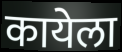
कायेला